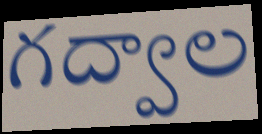
గద్వాల